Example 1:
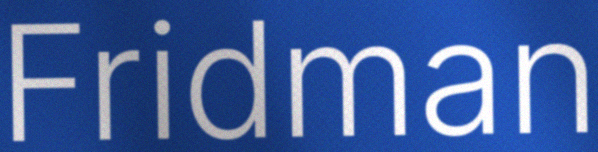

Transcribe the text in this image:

Fridman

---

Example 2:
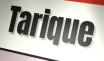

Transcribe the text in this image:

Tarique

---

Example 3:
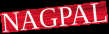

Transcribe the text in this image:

NAGPAL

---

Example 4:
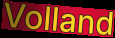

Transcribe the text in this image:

Volland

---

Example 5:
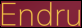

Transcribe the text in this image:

Endru